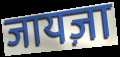
जायज़ा